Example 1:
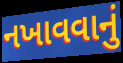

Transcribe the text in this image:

નખાવવાનું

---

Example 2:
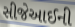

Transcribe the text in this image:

સીજેઆઈની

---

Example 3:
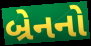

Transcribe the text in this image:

બ્રેનનો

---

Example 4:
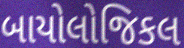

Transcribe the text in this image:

બાયોલોજિકલ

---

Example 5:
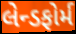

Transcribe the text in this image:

લેન્ડફોર્મ